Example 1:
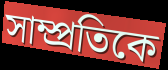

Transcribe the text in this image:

সাম্প্রতিকে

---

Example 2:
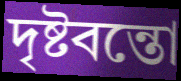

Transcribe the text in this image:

দৃষ্টবন্তো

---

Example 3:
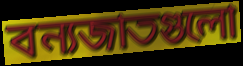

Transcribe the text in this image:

বন্যজাতগুলো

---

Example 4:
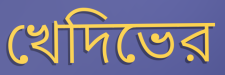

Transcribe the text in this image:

খেদিভের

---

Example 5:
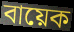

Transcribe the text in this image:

বায়েক